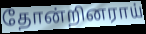
தோன்றினராய்